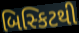
બિસ્કિટથી